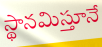
స్థానమిస్తూనే